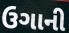
ઉગાની